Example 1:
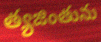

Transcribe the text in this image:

త్యజింతును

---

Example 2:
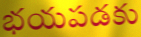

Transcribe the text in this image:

భయపడకు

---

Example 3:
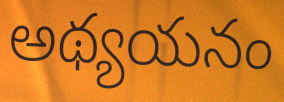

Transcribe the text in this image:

అథ్యయనం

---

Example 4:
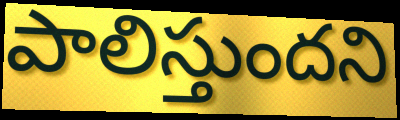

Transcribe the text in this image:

పాలిస్తుందని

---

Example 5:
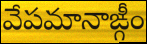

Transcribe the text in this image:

వేపమానాఙ్గీం